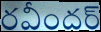
రవీందర్